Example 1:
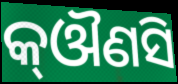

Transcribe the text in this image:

କ୍ଔଣସି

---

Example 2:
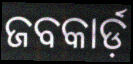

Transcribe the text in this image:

ଜବକାର୍ଡ଼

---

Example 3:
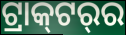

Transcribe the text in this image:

ଟ୍ରାକ୍‍ଟର୍‍ର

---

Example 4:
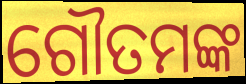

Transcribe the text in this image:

ଗୌତମଙ୍କ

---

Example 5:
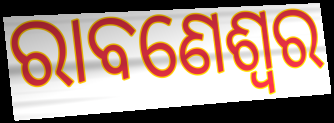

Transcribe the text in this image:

ରାବଣେଶ୍ୱର